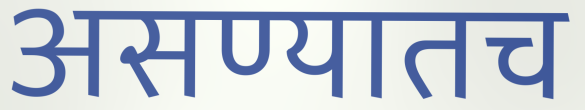
असण्यातच